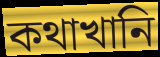
কথাখানি